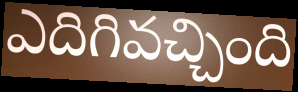
ఎదిగివచ్చింది